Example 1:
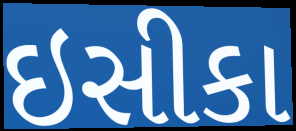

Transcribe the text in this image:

ઇસીકા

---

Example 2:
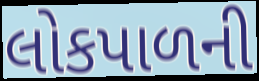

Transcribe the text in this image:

લોકપાળની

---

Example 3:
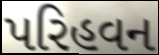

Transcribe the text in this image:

પરિહવન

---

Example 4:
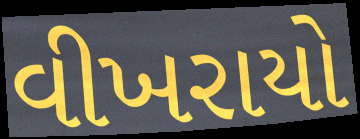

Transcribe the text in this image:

વીખરાયો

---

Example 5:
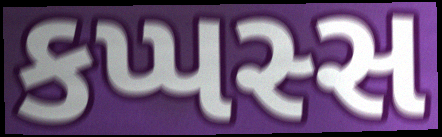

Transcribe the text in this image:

કપ્પસ્સ